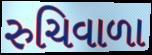
રુચિવાળા